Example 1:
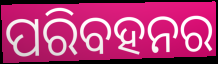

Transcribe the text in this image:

ପରିବହନର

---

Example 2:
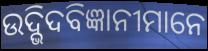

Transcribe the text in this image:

ଉଦ୍ଭିଦବିଜ୍ଞାନୀମାନେ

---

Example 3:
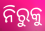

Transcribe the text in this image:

ନିରୁକୁ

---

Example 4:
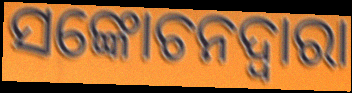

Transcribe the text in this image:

ସଙ୍କୋଚନଦ୍ୱାରା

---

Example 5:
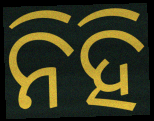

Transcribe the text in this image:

ନିହି